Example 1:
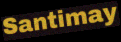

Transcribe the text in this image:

Santimay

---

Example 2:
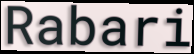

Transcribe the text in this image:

Rabari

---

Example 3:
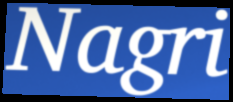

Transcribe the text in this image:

Nagri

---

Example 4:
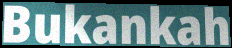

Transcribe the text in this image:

Bukankah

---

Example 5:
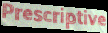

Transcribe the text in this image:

Prescriptive